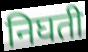
निघती